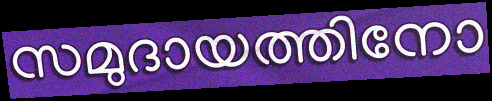
സമുദായത്തിനോ